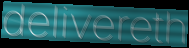
delivereth